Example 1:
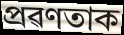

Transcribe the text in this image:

প্ৰৱণতাক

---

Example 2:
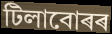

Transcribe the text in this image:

টিলাবোৰৰ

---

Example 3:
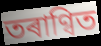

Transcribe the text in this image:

তৰাণ্বিত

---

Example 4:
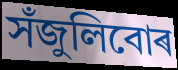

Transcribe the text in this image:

সঁজুলিবোৰ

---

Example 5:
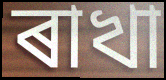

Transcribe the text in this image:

ৰাখা